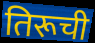
तिरूची